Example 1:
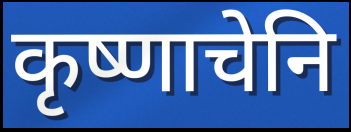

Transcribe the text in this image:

कृष्णाचेनि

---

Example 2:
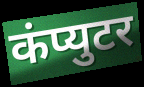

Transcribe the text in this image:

कंप्युटर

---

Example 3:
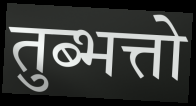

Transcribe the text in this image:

तुब्भत्तो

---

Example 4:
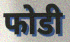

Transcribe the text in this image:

फोडी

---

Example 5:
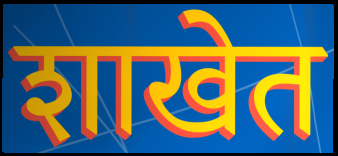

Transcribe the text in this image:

शाखेत